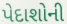
પેદાશોની